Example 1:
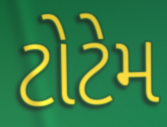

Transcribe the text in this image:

ટોટેમ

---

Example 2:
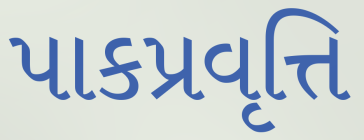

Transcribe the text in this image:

પાકપ્રવૃત્તિ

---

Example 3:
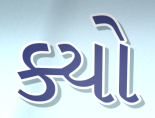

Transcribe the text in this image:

ક્યો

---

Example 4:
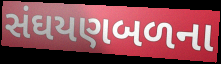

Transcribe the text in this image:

સંઘયણબળના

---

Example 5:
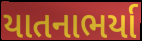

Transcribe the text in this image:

યાતનાભર્યા